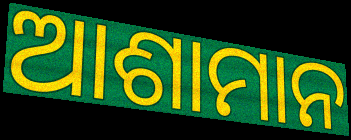
ଆଶାମାନ